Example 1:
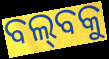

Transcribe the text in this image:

ବଲ୍‌ବକୁ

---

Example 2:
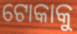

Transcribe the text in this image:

ଟୋକାକୁ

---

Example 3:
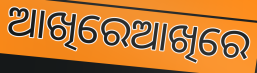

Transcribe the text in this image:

ଆଖିରେଆଖିରେ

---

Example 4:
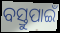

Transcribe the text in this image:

ବସ୍ତୁପାଇଁ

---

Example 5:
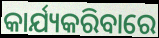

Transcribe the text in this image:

କାର୍ଯ୍ୟକରିବାରେ